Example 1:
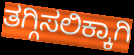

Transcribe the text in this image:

ತಗ್ಗಿಸಲಿಕ್ಕಾಗಿ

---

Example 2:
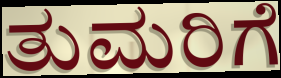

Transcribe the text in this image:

ತುಮರಿಗೆ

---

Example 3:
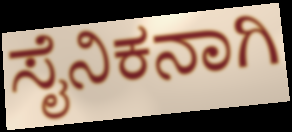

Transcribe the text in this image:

ಸೈನಿಕನಾಗಿ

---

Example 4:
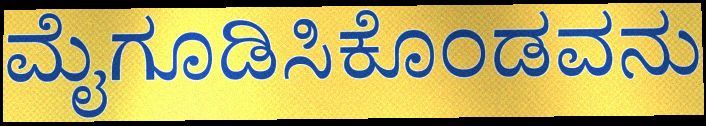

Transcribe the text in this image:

ಮೈಗೂಡಿಸಿಕೊಂಡವನು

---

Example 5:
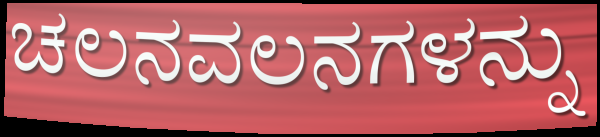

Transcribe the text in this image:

ಚಲನವಲನಗಳನ್ನು